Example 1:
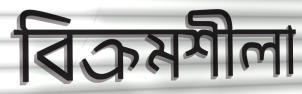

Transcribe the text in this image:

বিক্রমশীলা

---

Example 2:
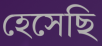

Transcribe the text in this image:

হেসেছি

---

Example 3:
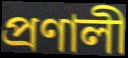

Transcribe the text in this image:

প্রণালী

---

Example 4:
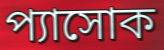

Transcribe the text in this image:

প্যাসোক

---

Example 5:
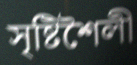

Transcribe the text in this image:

সৃষ্টিশৈলী